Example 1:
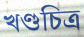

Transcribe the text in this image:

খণ্ডচিত্র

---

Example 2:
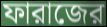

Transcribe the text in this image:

ফারাজের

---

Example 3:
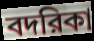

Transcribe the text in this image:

বদরিকা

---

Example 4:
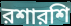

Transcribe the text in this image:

রশারশি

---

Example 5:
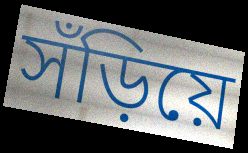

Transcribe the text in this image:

সঁড়িয়ে